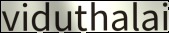
viduthalai